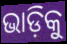
ଭାଡ଼ିକୁ